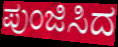
ಪುಂಜಿಸಿದ